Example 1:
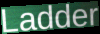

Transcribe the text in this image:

Ladder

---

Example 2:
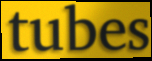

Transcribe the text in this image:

tubes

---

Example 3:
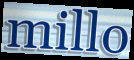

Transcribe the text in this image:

millo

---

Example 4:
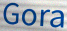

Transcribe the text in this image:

Gora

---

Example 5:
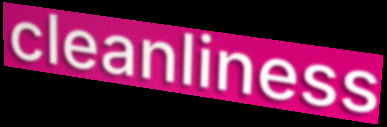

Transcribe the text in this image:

cleanliness